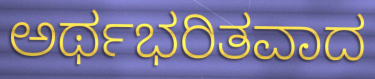
ಅರ್ಥಭರಿತವಾದ